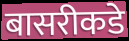
बासरीकडे